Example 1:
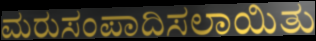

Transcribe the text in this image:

ಮರುಸಂಪಾದಿಸಲಾಯಿತು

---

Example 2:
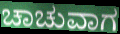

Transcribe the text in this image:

ಚಾಚುವಾಗ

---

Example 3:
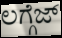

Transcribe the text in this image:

ಲಗ್ಗೆಜ್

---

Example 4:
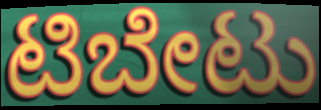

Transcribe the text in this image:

ಟಿಬೇಟು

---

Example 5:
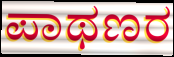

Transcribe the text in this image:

ಪಾಥಣರ